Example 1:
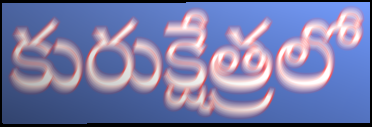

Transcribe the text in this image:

కురుక్షేత్రలో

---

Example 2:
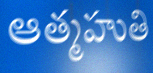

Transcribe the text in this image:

ఆత్మహుతి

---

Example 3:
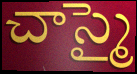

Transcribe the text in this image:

చాస్మై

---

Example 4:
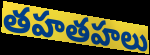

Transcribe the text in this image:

తహతహలు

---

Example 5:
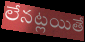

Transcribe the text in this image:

లేనట్లయితే